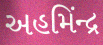
અહમિંન્દ્ર